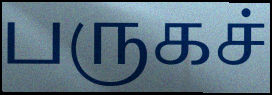
பருகச்